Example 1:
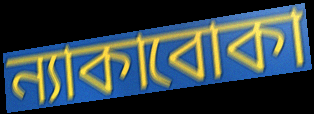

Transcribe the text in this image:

ন্যাকাবোকা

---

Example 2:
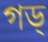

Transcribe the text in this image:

গড্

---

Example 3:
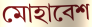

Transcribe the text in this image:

মোহাবেশ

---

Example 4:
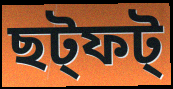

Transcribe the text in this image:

ছট্ফট্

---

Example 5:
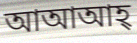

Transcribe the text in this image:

আআআহ্